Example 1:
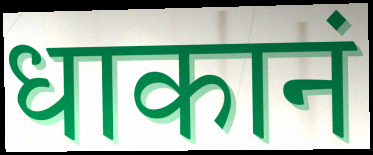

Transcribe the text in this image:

धाकानं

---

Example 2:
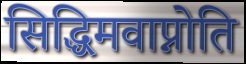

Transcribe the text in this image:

सिद्धिमवाप्नोति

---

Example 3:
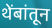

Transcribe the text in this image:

थेंबांतून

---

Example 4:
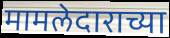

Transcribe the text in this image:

मामलेदाराच्या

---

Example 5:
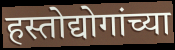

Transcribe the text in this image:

हस्तोद्योगांच्या